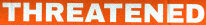
THREATENED